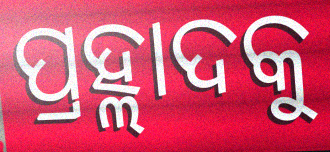
ପ୍ରହ୍ଲାଦକୁ